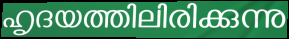
ഹൃദയത്തിലിരിക്കുന്നു